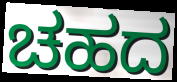
ಚಹದ